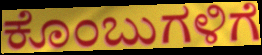
ಕೊಂಬುಗಳಿಗೆ